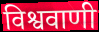
विश्ववाणी